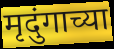
मृदुंगाच्या